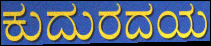
ಕುದುರದಯ